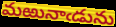
మఱునాఁడును